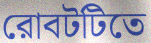
রোবটটিতে